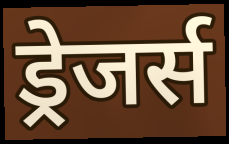
ड्रेजर्स